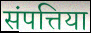
संपत्तिया